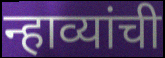
न्हाव्यांची